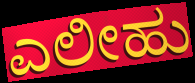
ಎಲೀಹು